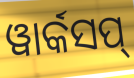
ୱାର୍କସପ୍